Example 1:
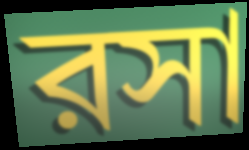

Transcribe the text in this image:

রসা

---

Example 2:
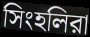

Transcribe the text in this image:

সিংহলিরা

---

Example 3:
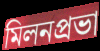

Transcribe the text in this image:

মিলনপ্রভা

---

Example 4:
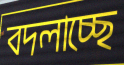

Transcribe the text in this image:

বদলাচ্ছে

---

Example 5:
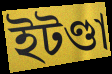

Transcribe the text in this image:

ইটণ্ডা